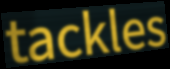
tackles